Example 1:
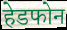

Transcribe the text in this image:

हेडफोन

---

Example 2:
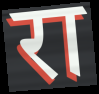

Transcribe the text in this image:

रा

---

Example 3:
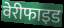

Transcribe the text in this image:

वेरीफाइड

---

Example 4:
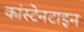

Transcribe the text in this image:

कांस्टेनटाइन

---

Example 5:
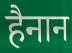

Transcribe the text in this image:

हैनान